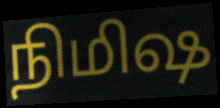
நிமிஷ